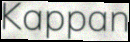
Kappan